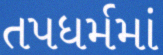
તપધર્મમાં